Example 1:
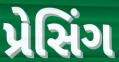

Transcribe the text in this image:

પ્રેસિંગ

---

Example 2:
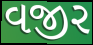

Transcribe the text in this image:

વજીર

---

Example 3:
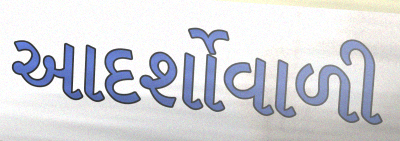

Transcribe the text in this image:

આદર્શોવાળી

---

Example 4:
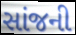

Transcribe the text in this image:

સાંજની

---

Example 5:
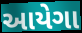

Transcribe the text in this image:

આયેગા